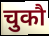
चुकौ